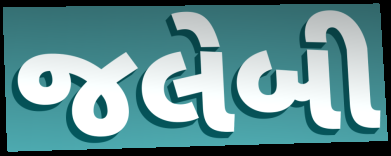
જલેબી